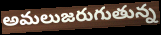
అమలుజరుగుతున్న